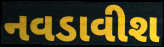
નવડાવીશ